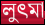
লুৎমা